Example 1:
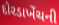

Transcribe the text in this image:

દોરડાખેંચની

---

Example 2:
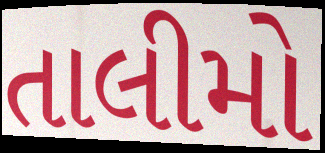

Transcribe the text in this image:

તાલીમો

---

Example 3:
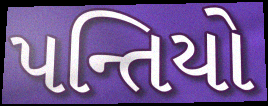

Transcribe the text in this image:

પન્તિયો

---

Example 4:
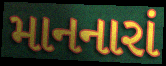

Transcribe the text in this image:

માનનારાં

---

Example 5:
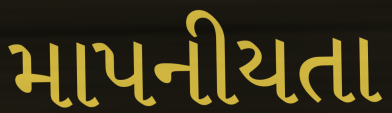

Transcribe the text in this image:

માપનીયતા